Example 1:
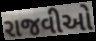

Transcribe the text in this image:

રાજવીઓ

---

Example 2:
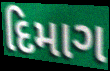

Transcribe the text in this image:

દિમાગ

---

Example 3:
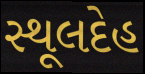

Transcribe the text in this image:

સ્થૂલદેહ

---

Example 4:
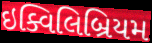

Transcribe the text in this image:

ઇક્વિલિબ્રિયમ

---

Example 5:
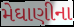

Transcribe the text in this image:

મેઘાણીના